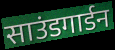
साउंडगार्डन